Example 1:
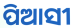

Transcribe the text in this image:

ପିଆସୀ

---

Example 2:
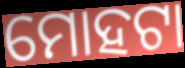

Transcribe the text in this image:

ମୋହଟା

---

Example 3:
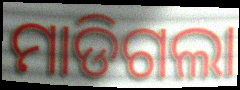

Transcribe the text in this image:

ମାଡିଗଲା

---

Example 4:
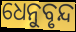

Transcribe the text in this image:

ଧେନୁବୃନ୍ଦ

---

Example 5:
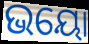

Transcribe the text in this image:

ଭୟୋ